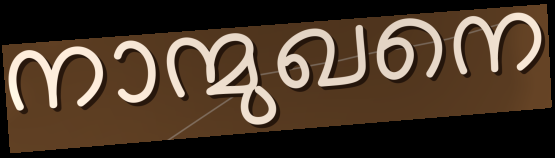
നാന്മുഖനെ